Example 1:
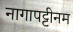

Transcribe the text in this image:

नागापट्टीनम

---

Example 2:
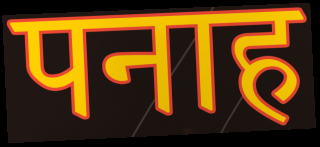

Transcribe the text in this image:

पनाह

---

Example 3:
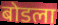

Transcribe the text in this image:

बोडला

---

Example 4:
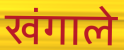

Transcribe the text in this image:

खंगाले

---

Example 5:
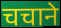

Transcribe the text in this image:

चचाने